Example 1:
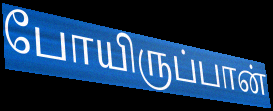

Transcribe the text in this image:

போயிருப்பான்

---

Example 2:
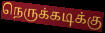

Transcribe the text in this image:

நெருக்கடிக்கு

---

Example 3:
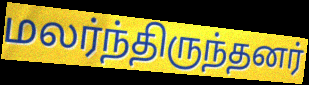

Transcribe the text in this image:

மலர்ந்திருந்தனர்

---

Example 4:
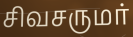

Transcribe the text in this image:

சிவசருமர்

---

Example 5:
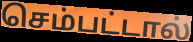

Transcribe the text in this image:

செம்பட்டால்